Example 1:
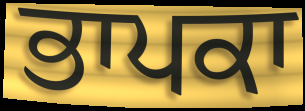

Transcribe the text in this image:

ਭਾਪਕਾ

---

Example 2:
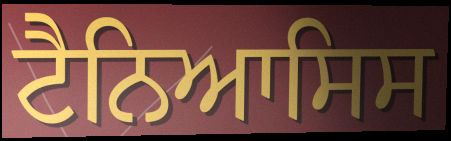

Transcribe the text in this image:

ਟੈਨਿਆਸਿਸ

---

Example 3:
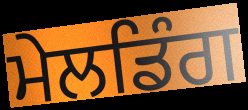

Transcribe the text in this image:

ਮੇਲਡਿੰਗ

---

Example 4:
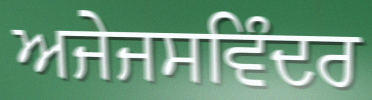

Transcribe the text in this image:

ਅਜੇਜਸਵਿੰਦਰ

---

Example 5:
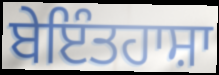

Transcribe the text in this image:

ਬੇਇੰਤਹਾਸ਼ਾ